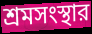
শ্রমসংস্থার